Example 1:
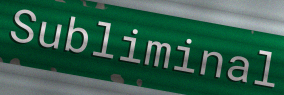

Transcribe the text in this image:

Subliminal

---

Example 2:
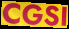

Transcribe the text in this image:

CGSI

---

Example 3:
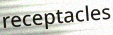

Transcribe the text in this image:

receptacles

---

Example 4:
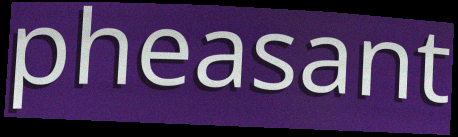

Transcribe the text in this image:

pheasant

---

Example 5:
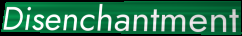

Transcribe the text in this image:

Disenchantment